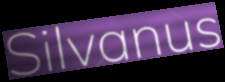
Silvanus